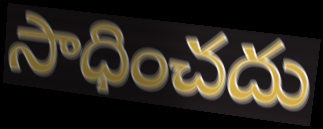
సాధించదు